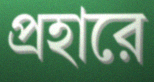
প্রহারে